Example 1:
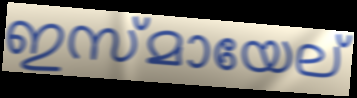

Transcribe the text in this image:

ഇസ്മായേല്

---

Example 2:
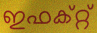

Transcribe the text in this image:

ഇഫക്റ്റ്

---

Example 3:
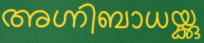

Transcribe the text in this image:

അഗ്നിബാധയ്ക്കു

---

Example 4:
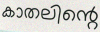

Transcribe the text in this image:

കാതലിന്റെ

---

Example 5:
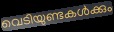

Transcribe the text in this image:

വെടിയുണ്ടകൾക്കും